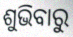
ଶୁଭିବାରୁ